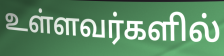
உள்ளவர்களில்